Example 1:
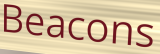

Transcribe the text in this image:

Beacons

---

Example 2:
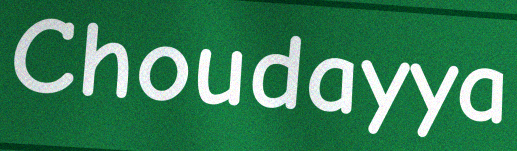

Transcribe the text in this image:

Choudayya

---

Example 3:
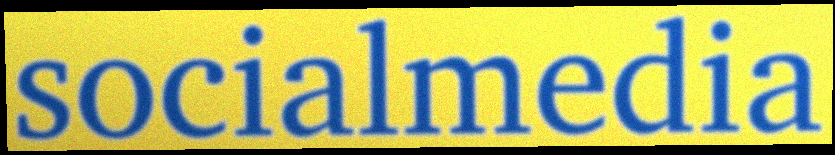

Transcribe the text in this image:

socialmedia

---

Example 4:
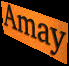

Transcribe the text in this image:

Amay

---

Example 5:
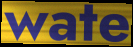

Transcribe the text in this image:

wate